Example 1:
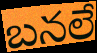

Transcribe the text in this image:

బనలే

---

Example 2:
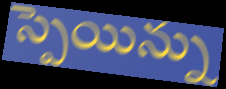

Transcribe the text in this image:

స్పెయిన్ను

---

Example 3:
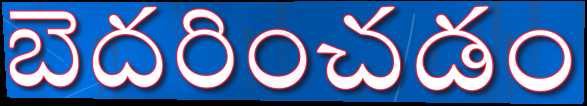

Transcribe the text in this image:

బెదరించడం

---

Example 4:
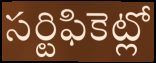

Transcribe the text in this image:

సర్టిఫికెట్లో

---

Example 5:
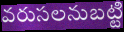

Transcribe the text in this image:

వరుసలనుబట్టి